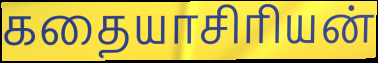
கதையாசிரியன்